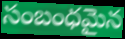
సంబంధమైన